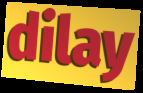
dilay